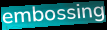
embossing